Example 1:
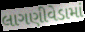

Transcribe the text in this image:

લાગણીવેડામાં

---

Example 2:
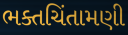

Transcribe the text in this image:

ભક્તચિંતામણી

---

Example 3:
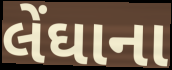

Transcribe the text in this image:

લેંઘાના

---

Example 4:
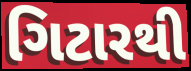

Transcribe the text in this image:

ગિટારથી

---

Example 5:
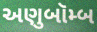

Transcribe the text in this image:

અણુબૉમ્બ